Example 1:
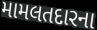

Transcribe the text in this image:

મામલતદારના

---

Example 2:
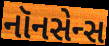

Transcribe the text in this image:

નૉનસેન્સ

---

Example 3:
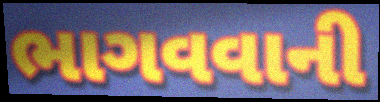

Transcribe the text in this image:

ભાગવવાની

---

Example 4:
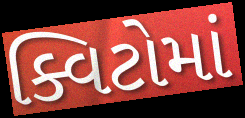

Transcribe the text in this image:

ક્વિટોમાં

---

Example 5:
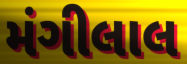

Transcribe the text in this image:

મંગીલાલ